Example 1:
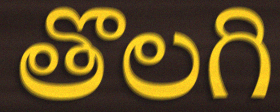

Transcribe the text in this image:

తొలగి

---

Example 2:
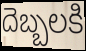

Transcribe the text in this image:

దెబ్బలకి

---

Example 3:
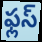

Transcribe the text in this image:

ఫ్లస్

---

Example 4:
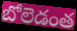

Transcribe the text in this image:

బోలెడంత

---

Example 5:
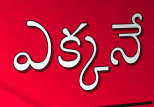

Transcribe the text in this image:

ఎక్కనే